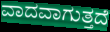
ವಾದವಾಗುತ್ತದೆ